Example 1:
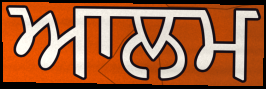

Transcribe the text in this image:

ਆਲਮ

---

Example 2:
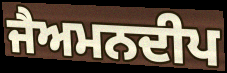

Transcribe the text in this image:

ਜੈਅਮਨਦੀਪ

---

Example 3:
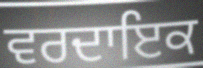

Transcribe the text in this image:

ਵਰਦਾਇਕ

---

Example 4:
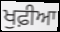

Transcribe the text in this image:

ਖੁਫ਼ੀਆ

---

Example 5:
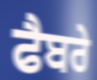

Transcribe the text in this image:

ਫੈਬਰੇ